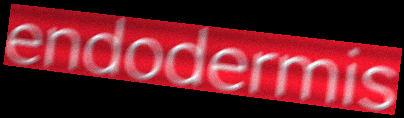
endodermis